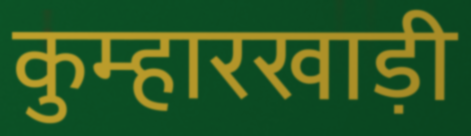
कुम्हारखाड़ी